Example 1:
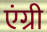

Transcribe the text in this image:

एंग्री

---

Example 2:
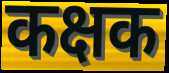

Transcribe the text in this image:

कक्षक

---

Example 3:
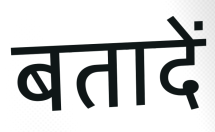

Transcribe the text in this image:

बतादें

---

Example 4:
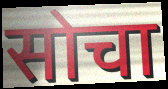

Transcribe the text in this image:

सोचा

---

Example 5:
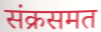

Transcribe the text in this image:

संक्रसमत